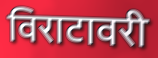
विराटावरी